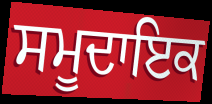
ਸਮੂਦਾਇਕ